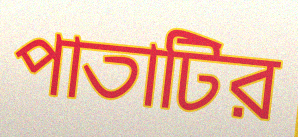
পাতাটির